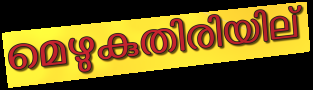
മെഴുകുതിരിയില്